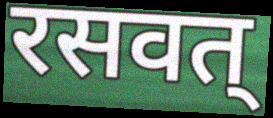
रसवत्